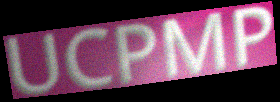
UCPMP